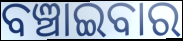
ବଞ୍ଚାଇବାର